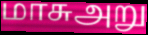
மாசுஅறு